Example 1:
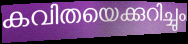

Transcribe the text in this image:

കവിതയെക്കുറിച്ചും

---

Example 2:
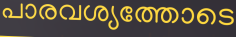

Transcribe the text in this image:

പാരവശ്യത്തോടെ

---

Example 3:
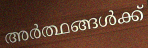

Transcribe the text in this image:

അർത്ഥങ്ങൾക്ക്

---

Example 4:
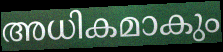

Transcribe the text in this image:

അധികമാകും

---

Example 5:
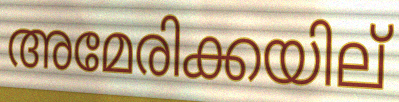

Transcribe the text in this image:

അമേരിക്കയില്